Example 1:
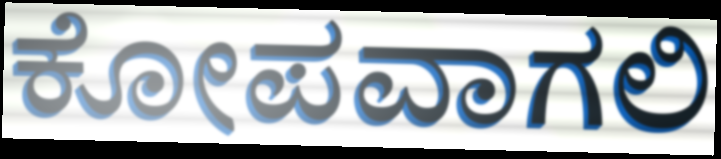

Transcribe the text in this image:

ಕೋಪವಾಗಲಿ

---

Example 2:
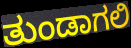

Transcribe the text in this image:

ತುಂಡಾಗಲಿ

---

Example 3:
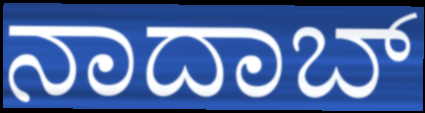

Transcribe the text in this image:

ನಾದಾಬ್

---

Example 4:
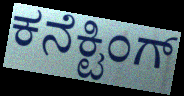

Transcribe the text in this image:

ಕನೆಕ್ಟಿಂಗ್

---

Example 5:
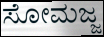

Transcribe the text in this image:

ಸೋಮಜ್ಜ